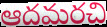
ఆదమరచి